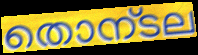
തൊന്ടല